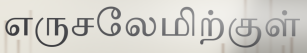
எருசலேமிற்குள்